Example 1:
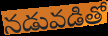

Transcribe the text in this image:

నడువడితో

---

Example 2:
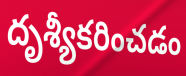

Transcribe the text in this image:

దృశ్యీకరించడం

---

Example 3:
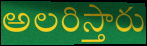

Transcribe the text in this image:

అలరిస్తారు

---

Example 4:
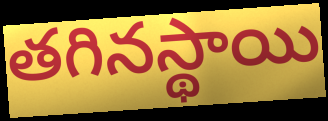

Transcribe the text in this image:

తగినస్థాయి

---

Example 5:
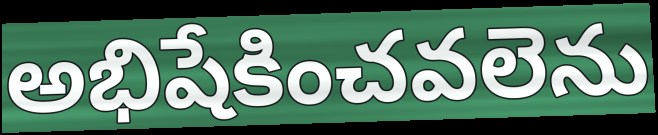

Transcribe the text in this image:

అభిషేకించవలెను